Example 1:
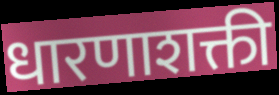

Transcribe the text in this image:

धारणाशक्ती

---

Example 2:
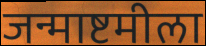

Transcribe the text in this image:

जन्माष्टमीला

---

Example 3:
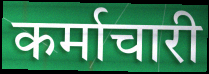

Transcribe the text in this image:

कर्माचारी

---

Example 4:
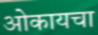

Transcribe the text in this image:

ओकायचा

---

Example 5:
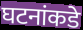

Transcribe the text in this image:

घटनांकडे